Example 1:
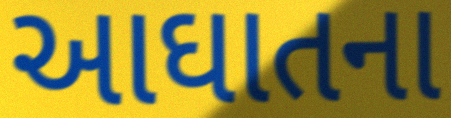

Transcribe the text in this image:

આઘાતના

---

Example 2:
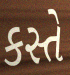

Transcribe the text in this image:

કસ્તે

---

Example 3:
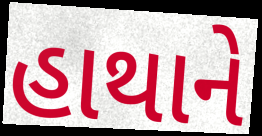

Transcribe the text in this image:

હાથાને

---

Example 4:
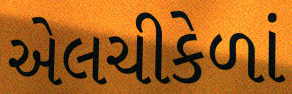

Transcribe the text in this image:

એલચીકેળાં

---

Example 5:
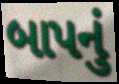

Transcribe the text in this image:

બાપનું